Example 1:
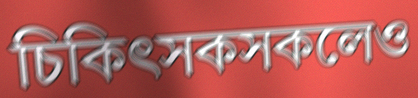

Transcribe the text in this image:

চিকিৎসকসকলেও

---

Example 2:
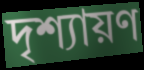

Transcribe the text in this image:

দৃশ্যায়ণ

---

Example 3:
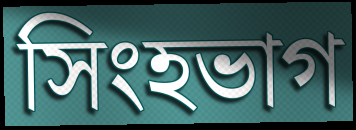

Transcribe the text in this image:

সিংহভাগ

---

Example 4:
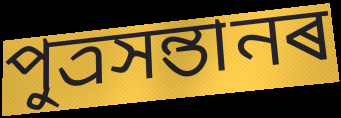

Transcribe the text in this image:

পুত্ৰসন্তানৰ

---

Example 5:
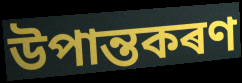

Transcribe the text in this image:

উপান্তকৰণ